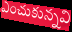
ఎంచుకున్నవి